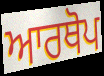
ਆਰਥੋਪ